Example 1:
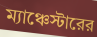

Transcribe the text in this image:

ম্যাঞ্চেস্টারের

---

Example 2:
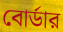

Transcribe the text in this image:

বোর্ডার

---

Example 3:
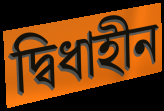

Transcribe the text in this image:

দ্বিধাহীন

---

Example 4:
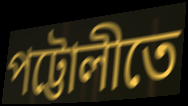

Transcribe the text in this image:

পট্টোলীতে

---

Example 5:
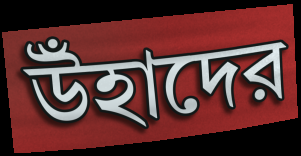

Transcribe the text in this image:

উঁহাদের